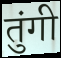
तुंगी